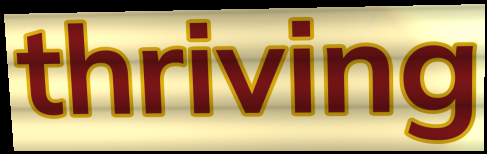
thriving